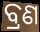
ବ୍ରଣ